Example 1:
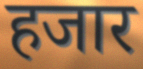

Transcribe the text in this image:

हजार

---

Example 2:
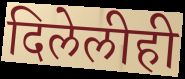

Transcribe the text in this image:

दिलेलीही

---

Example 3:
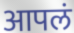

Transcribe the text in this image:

आपलं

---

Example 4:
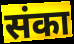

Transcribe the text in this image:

संका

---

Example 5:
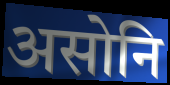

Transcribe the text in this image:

असोनि